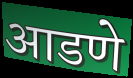
आडणे